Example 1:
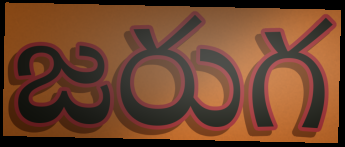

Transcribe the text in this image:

జరుగ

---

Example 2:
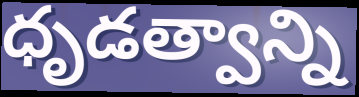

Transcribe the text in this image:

ధృడత్వాన్ని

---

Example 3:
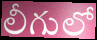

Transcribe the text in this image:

లీగులో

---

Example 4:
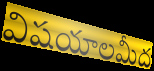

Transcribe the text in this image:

విషయాలమీద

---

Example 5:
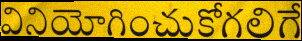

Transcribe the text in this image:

వినియోగించుకోగలిగే